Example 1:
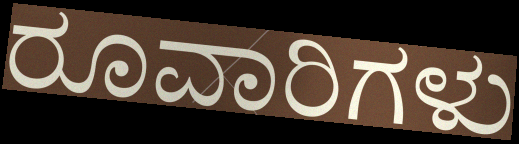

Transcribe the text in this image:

ರೂವಾರಿಗಳು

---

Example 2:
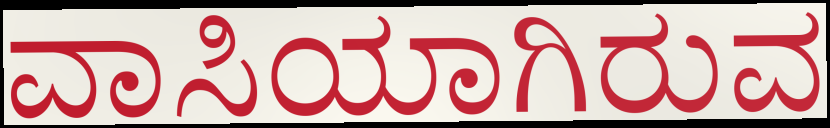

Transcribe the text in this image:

ವಾಸಿಯಾಗಿರುವ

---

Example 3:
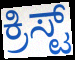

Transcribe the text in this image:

ಕ್ರಿಸ್ಟ್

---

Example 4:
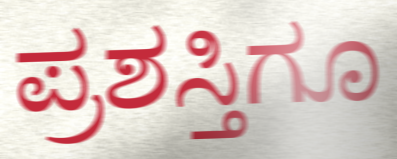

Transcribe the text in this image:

ಪ್ರಶಸ್ತಿಗೂ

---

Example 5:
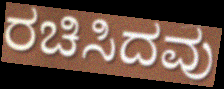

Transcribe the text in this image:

ರಚಿಸಿದವು